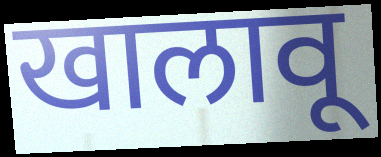
खालावू